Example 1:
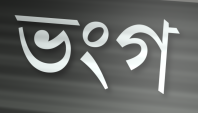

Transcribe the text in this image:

ভংগ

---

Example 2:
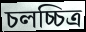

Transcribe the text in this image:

চলচ্চিত্ৰ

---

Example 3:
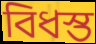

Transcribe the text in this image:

বিধস্ত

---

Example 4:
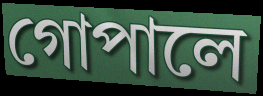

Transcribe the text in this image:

গোপালে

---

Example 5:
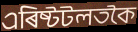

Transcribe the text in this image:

এৰিষ্টটলতকৈ